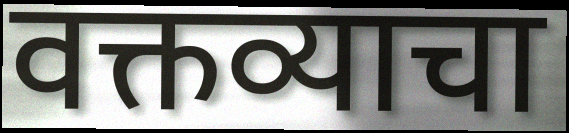
वक्तव्याचा